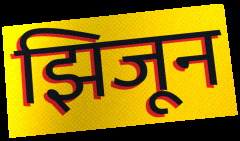
झिजून